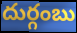
దుర్గంబు